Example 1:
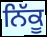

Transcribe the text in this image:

ਨਿੱਕੂ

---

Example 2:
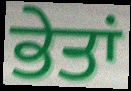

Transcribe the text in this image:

ਭੇਤਾਂ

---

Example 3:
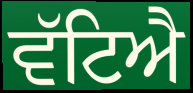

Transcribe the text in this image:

ਵੱਟਿਐ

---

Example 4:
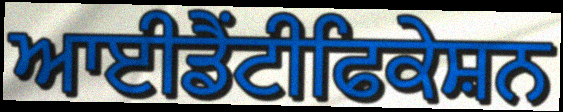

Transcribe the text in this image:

ਆਈਡੈਂਟੀਫਿਕੇਸ਼ਨ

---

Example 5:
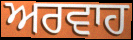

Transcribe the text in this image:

ਅਰਵਾਹ